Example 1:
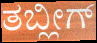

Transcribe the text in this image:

ತಬ್ಲೀಗ್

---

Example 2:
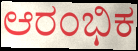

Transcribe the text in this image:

ಆರಂಭಿಕ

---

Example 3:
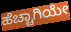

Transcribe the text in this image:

ಹೆಚ್ಚಾಗಿಯೇ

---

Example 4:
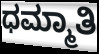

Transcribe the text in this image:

ಧಮ್ಮಾತಿ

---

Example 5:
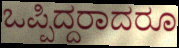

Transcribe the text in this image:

ಒಪ್ಪಿದ್ದರಾದರೂ